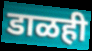
डाळही